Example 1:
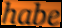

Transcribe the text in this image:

habe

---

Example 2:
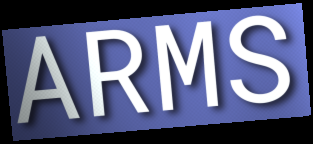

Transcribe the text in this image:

ARMS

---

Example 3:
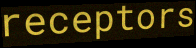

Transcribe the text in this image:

receptors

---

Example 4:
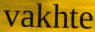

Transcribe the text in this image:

vakhte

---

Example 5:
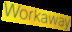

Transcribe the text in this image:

Workaway